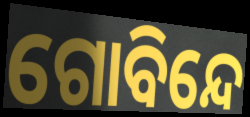
ଗୋବିନ୍ଦେ